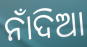
ନାଁଦିଆ